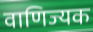
वाणिज्यक